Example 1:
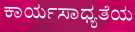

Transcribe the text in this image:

ಕಾರ್ಯಸಾಧ್ಯತೆಯ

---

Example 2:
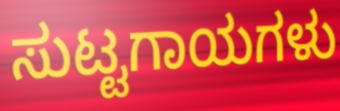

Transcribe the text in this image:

ಸುಟ್ಟಗಾಯಗಳು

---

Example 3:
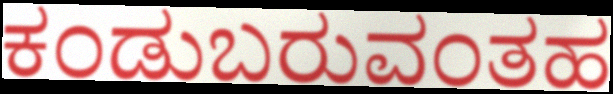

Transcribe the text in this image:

ಕಂಡುಬರುವಂತಹ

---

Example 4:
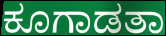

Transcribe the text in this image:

ಕೂಗಾಡತಾ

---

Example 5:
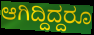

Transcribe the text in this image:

ಆಗಿದ್ದಿದ್ದರೂ